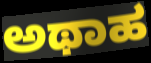
ಅಥಾಹ